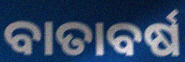
ବାତାବର୍ଷ